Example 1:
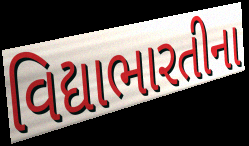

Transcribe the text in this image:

વિદ્યાભારતીના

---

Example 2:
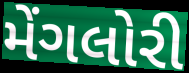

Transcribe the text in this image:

મેંગલોરી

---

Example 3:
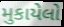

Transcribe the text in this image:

મુકાયેલો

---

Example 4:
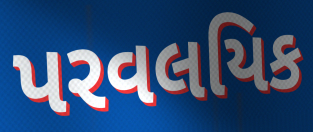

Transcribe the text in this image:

પરવલયિક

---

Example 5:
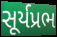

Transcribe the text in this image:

સૂર્યપ્રભ